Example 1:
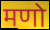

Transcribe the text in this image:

मणो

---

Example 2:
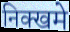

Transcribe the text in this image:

निक्खमे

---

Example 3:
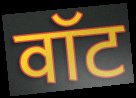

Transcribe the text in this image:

वॉट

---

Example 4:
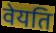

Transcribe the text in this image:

वेयति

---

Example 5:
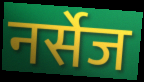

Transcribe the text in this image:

नर्सेज